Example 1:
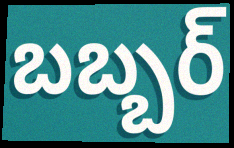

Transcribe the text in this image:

బబ్బర్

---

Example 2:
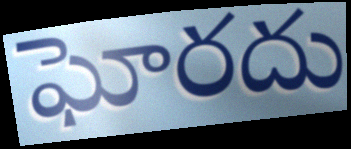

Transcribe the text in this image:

ఘోరదు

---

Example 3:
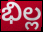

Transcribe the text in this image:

భిల్ల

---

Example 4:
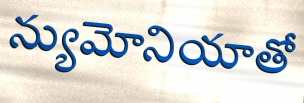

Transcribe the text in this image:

న్యుమోనియాతో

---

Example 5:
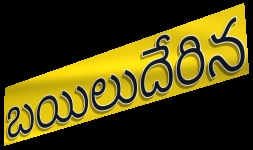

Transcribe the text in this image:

బయిలుదేరిన